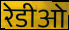
रेडीओ